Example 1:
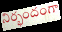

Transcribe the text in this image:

నిర్భందంగా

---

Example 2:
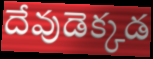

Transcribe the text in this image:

దేవుడెక్కడ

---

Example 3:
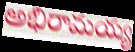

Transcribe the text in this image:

అభిరామయ్య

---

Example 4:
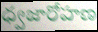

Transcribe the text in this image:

ధ్వజారోహణ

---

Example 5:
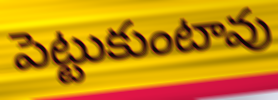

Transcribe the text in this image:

పెట్టుకుంటావు